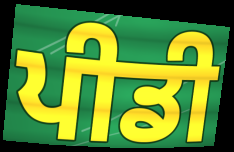
ਪੀਡੀ